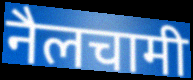
नैलचामी